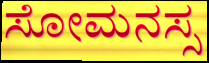
ಸೋಮನಸ್ಸ